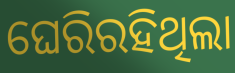
ଘେରିରହିଥିଲା